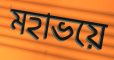
মহাভয়ে